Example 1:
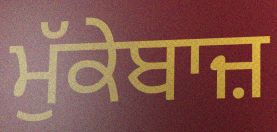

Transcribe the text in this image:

ਮੁੱਕੇਬਾਜ਼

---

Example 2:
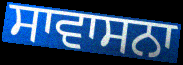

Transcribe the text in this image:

ਸਾਵਾਸਨਾ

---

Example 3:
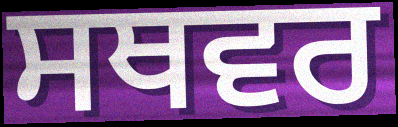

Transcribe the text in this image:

ਸਥਵਰ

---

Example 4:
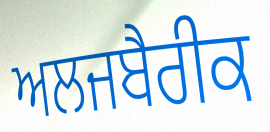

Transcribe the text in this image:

ਅਲਜਬੈਰੀਕ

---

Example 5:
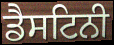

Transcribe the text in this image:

ਡੈਸਟਿਨੀ